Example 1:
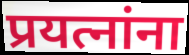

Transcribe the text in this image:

प्रयत्नांना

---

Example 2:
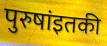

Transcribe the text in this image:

पुरुषांइतकी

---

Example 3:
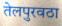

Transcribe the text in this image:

तेलपुरवठा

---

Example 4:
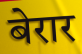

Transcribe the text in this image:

बेरार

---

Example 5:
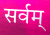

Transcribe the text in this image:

सर्वम्